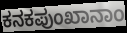
ಕನಕಪುಂಖಾನಾಂ